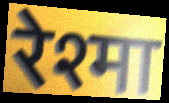
रेश्मा